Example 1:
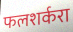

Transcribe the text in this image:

फलशर्करा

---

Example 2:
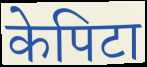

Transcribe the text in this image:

केपिटा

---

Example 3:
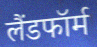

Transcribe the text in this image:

लैंडफॉर्म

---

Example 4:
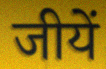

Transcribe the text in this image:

जीयें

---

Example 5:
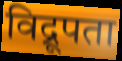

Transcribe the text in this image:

विद्रूपता